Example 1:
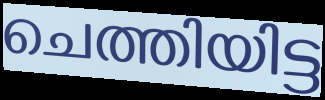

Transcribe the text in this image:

ചെത്തിയിട്ട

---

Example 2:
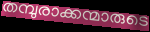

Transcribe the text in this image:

തമ്പുരാക്കന്മാരുടെ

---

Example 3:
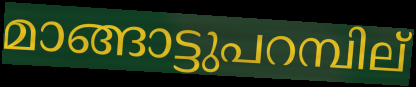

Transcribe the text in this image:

മാങ്ങാട്ടുപറമ്പില്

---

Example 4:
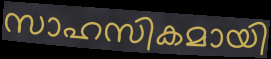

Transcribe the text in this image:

സാഹസികമായി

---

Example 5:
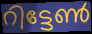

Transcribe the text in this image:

റിട്ടേൺ